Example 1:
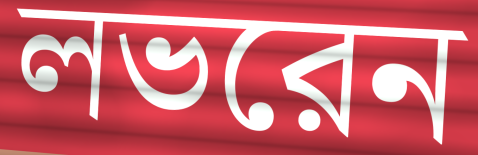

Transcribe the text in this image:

লভরেন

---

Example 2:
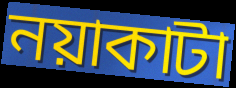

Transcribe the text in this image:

নয়াকাটা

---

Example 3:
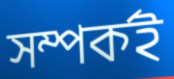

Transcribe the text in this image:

সম্পর্কই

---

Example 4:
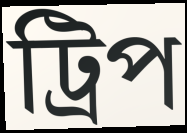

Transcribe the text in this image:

ট্রিপ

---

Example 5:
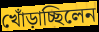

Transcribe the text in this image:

খোঁড়াচ্ছিলেন